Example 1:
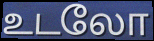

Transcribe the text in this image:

உடலோ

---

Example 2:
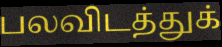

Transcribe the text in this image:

பலவிடத்துக்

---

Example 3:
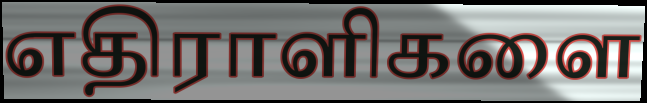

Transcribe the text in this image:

எதிராளிகளை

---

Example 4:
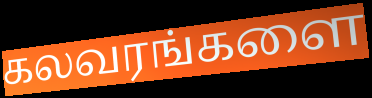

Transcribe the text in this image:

கலவரங்களை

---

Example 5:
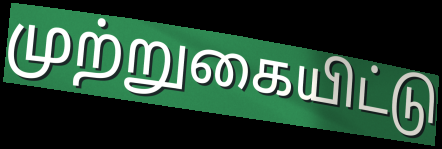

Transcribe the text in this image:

முற்றுகையிட்டு